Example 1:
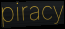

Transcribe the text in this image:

piracy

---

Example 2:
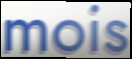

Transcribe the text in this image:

mois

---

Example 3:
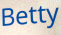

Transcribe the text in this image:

Betty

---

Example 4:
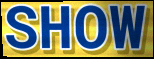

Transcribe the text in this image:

SHOW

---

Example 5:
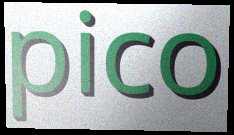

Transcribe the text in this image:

pico